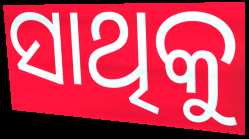
ସାଥିକୁ